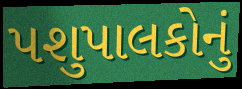
પશુપાલકોનું